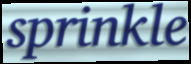
sprinkle